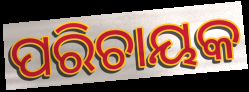
ପରିଚାୟକ